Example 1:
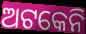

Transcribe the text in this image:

ଅଟକେନି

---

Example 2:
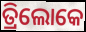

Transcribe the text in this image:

ତ୍ରିଲୋକେ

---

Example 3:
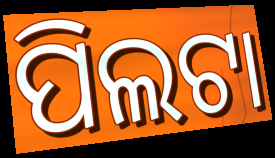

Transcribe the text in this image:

ପିଲଟା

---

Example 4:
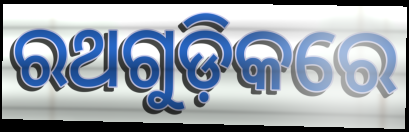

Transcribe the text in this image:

ରଥଗୁଡ଼ିକରେ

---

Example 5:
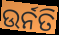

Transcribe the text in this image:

ଉର୍ନତି